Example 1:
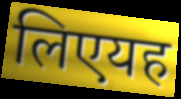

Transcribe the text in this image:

लिएयह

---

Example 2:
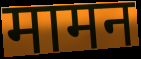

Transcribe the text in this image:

मामन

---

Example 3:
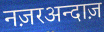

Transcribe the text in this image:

नज़रअन्दाज़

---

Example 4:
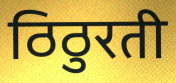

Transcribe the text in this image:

ठिठुरती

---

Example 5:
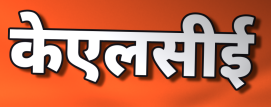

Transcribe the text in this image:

केएलसीई